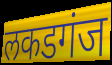
लकडगंज